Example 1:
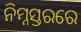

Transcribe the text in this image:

ନିମ୍ନସ୍ତରରେ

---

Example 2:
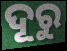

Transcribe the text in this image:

ଦୂରୁ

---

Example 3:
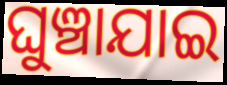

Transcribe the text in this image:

ଘୁଞ୍ଚାଯାଇ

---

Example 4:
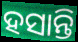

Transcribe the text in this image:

ହସାନ୍ତି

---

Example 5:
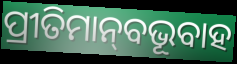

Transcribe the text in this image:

ପ୍ରୀତିମାନ୍‌ବଭୂବାହ